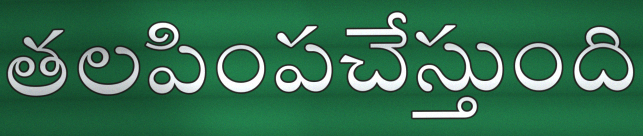
తలపింపచేస్తుంది